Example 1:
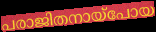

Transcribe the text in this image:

പരാജിതനായ്പോയ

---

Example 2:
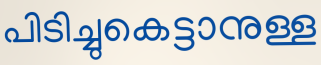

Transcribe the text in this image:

പിടിച്ചുകെട്ടാനുള്ള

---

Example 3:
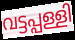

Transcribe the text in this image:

വട്ടപ്പള്ളി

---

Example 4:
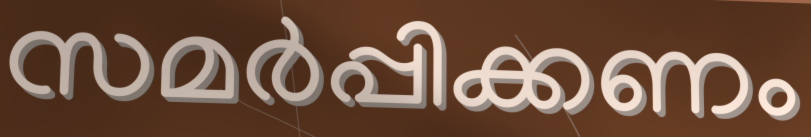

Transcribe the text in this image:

സമർപ്പിക്കണം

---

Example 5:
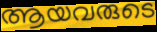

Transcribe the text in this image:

ആയവരുടെ